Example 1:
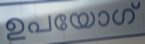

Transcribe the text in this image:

ഉപയോഗ്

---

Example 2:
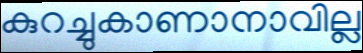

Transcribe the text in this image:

കുറച്ചുകാണാനാവില്ല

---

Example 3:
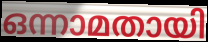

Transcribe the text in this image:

ഒന്നാമതായി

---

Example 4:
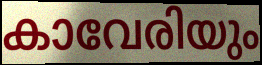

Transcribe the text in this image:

കാവേരിയും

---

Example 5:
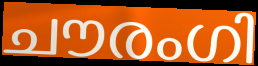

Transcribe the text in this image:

ചൗരംഗി